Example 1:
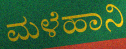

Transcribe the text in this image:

ಮಳೆಹಾನಿ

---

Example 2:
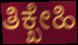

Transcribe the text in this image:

ತಿಕ್ಖೇಹಿ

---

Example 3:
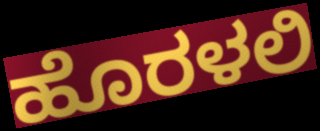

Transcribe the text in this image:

ಹೊರಳಲಿ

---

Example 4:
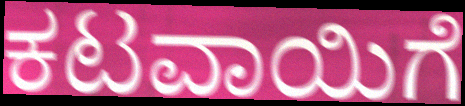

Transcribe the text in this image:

ಕಟವಾಯಿಗೆ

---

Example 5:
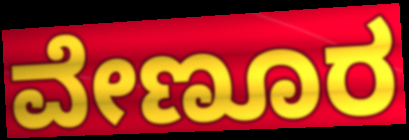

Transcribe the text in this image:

ವೇಣೂರ